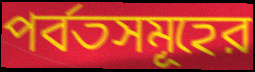
পর্বতসমূহের